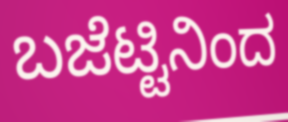
ಬಜೆಟ್ಟಿನಿಂದ